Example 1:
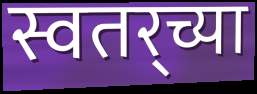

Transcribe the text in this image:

स्वतर्‍च्या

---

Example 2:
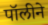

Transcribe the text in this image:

पॉलीने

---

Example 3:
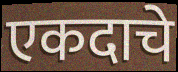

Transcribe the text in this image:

एकदाचे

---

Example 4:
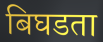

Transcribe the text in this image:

बिघडता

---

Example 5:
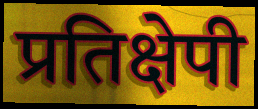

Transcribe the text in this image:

प्रतिक्षेपी